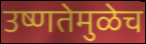
उष्णतेमुळेच